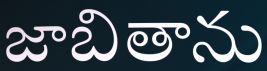
జాబితాను